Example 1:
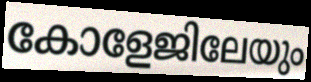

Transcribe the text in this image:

കോളേജിലേയും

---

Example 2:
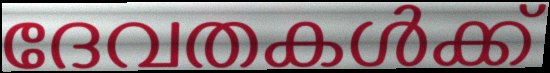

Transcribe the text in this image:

ദേവതകൾക്ക്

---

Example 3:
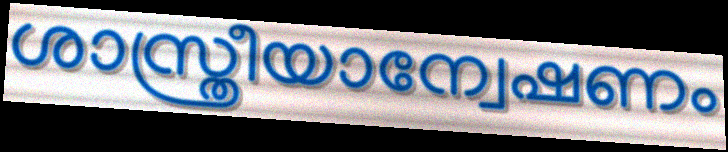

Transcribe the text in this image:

ശാസ്ത്രീയാന്വേഷണം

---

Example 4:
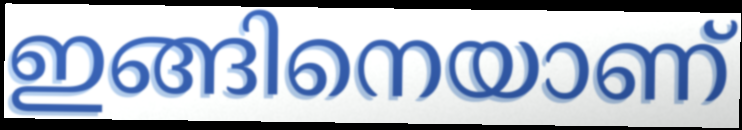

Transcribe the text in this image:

ഇങ്ങിനെയാണ്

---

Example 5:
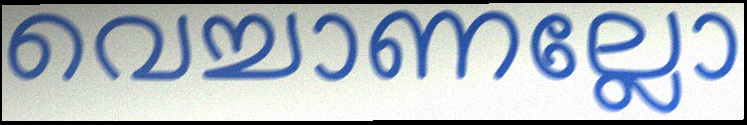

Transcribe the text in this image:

വെച്ചാണല്ലോ